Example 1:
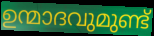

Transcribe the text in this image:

ഉന്മാദവുമുണ്ട്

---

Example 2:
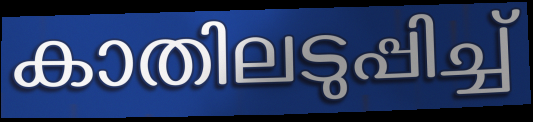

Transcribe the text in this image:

കാതിലടുപ്പിച്ച്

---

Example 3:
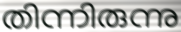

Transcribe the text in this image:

തിന്നിരുന്നു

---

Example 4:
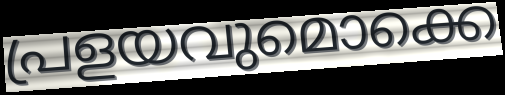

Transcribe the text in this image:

പ്രളയവുമൊക്കെ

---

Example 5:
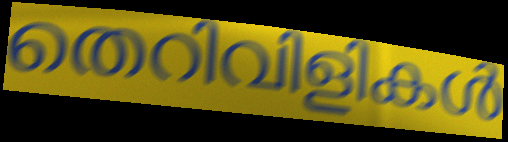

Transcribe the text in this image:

തെറിവിളികൾ